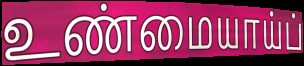
உண்மையாய்ப்